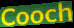
Cooch